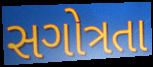
સગોત્રતા